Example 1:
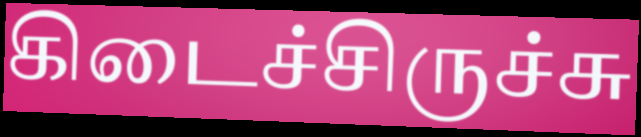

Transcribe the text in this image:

கிடைச்சிருச்சு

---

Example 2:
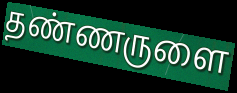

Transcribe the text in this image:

தண்ணருளை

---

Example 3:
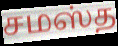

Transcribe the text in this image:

சமஸ்த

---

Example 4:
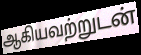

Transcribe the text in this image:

ஆகியவற்றுடன்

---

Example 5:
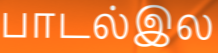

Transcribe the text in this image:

பாடல்இல